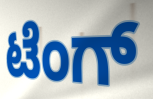
ಟೆಂಗ್